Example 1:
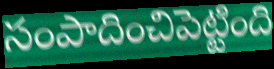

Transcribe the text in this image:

సంపాదించిపెట్టింది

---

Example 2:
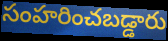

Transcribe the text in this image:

సంహరించబడ్డారు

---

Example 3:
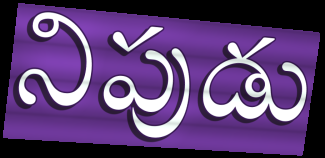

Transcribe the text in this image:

నిపుడు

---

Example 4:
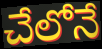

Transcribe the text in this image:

చేలోనే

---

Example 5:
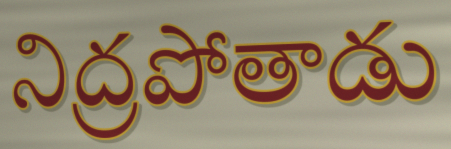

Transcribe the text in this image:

నిద్రపోతాడు